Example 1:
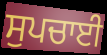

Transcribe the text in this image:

ਸੁਪਚਾਈ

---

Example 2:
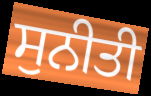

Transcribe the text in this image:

ਸੁਨੀਤੀ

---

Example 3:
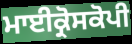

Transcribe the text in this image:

ਮਾਈਕ੍ਰੋਸਕੋਪੀ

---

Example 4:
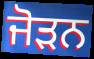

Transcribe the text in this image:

ਜੋੜਨ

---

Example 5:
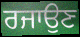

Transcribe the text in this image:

ਰਜਾਉਣ